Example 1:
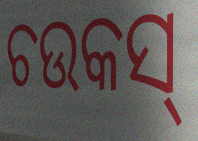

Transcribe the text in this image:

ଚଉକସ୍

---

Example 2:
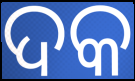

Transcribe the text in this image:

ଦକ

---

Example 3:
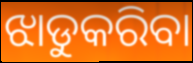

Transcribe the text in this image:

ଝାଡୁକରିବା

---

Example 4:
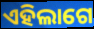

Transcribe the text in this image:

ଏହିଲାଗେ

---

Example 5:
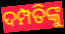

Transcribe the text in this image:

ଦମ୍ପତିଙ୍କୁ